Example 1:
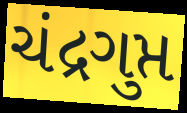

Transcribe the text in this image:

ચંદ્રગુપ્ત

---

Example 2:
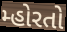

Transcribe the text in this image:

મ્હોરતો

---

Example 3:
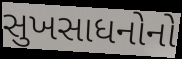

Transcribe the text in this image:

સુખસાધનોનો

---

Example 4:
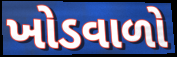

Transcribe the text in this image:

ખોડવાળો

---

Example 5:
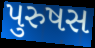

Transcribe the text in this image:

પુરુષસ